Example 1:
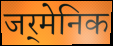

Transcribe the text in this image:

जर्मेनिक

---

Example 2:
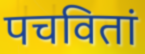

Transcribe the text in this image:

पचवितां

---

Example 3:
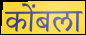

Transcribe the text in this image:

कोंबला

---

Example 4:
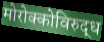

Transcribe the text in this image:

मोरोक्कोविरुद्ध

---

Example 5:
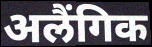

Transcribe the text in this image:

अलैंगिक